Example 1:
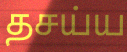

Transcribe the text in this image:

தசய்ய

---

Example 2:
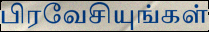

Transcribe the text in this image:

பிரவேசியுங்கள்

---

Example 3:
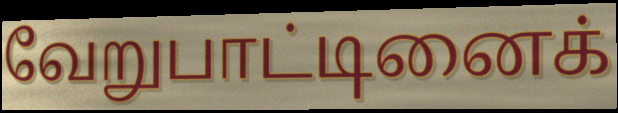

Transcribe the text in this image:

வேறுபாட்டினைக்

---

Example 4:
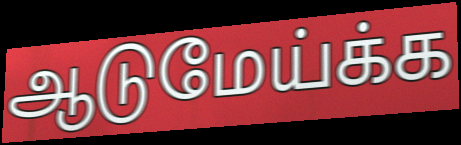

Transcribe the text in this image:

ஆடுமேய்க்க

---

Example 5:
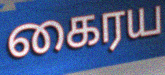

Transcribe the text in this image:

கைரய